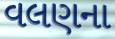
વલણના